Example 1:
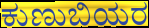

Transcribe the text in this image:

ಕುಣುಬಿಯರ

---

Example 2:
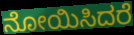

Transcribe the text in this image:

ನೋಯಿಸಿದರೆ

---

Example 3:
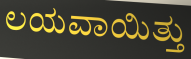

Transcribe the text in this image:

ಲಯವಾಯಿತ್ತು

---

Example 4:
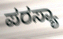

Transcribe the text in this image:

ಪರಸ್ಯಾ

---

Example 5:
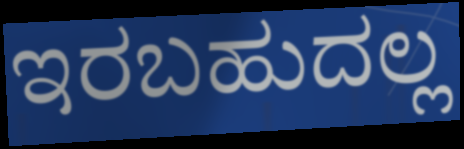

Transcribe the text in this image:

ಇರಬಹುದಲ್ಲ